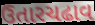
ઉતારચઢાવ